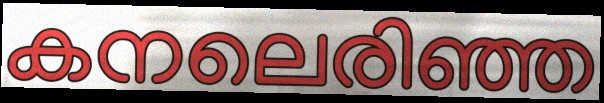
കനലെരിഞ്ഞ